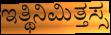
ಇತ್ಥಿನಿಮಿತ್ತಸ್ಸ